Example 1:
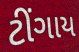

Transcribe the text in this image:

ટીંગાય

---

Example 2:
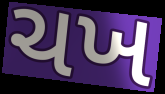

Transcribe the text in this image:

ચખ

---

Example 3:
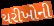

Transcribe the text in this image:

યરીખોની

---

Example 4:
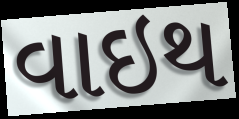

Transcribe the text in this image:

વાઇથ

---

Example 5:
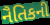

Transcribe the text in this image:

નૈતિકની